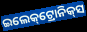
ଇଲେକ୍‌ଟ୍ରୋନିକ୍‌ସ